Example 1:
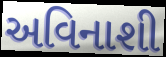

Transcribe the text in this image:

અવિનાશી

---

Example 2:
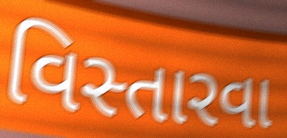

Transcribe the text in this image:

વિસ્તારવા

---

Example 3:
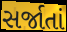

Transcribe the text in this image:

સર્જાતાં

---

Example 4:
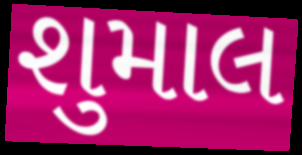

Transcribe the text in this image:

શુમાલ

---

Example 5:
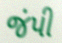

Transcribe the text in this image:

જંપી